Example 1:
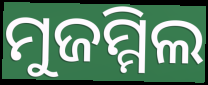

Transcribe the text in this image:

ମୁଜମ୍ମିଲ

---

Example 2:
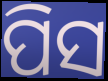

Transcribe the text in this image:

ପିସ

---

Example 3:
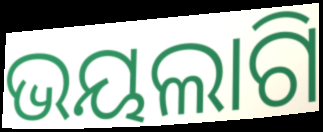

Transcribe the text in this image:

ଭୟଲାଗି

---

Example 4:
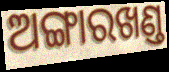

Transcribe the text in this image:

ଅଙ୍ଗାରଖଣ୍ଡ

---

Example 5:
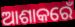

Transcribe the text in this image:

ଆଶାକରେଁ